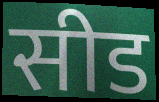
सीड